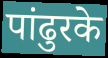
पांढुरके